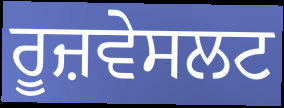
ਰੂਜ਼ਵੇਸਲਟ